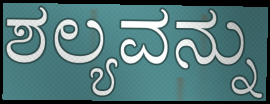
ಶಲ್ಯವನ್ನು